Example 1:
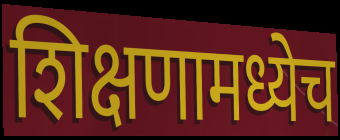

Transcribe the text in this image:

शिक्षणामध्येच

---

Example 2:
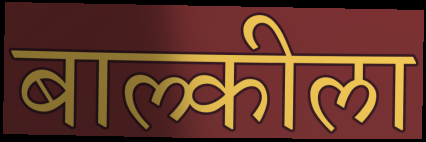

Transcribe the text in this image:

बाल्कीला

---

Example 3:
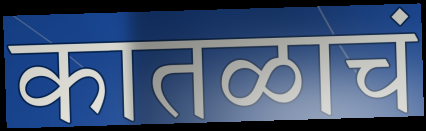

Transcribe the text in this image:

कातळाचं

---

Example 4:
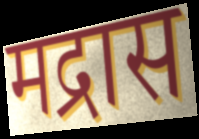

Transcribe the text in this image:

मद्रास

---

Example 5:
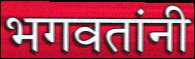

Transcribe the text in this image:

भगवतांनी